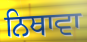
ਨਿਥਾਵਾ